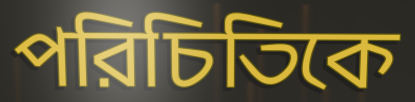
পরিচিতিকে